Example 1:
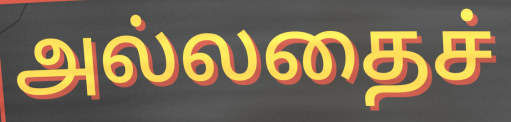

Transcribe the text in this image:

அல்லதைச்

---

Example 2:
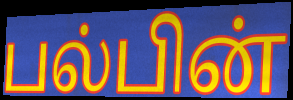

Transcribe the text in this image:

பல்பின்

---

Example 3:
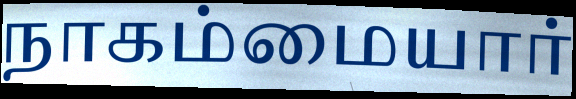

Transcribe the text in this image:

நாகம்மையார்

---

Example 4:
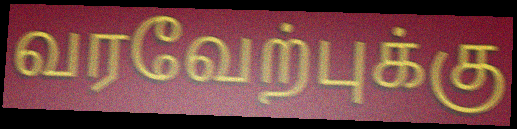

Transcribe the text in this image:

வரவேற்புக்கு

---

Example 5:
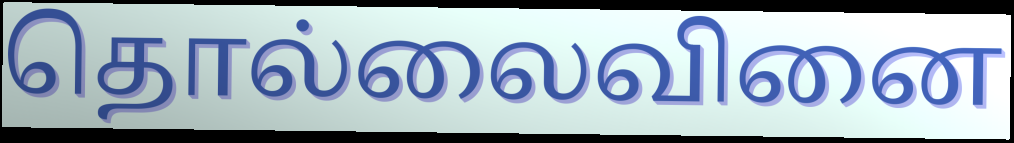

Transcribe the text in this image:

தொல்லைவினை